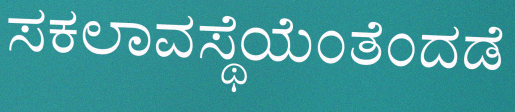
ಸಕಲಾವಸ್ಥೆಯೆಂತೆಂದಡೆ